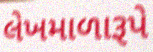
લેખમાળારૂપે